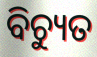
ବିଚ୍ୟୁତ